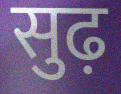
सुढ़